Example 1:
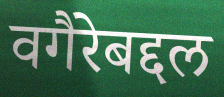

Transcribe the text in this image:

वगैरेबद्दल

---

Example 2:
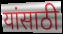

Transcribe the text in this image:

यांसाठी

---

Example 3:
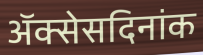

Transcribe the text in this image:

ॲक्सेसदिनांक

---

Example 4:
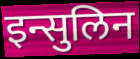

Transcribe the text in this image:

इन्सुलिन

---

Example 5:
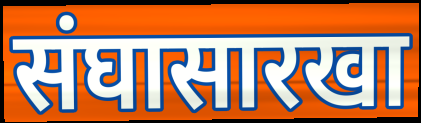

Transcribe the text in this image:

संघासारखा